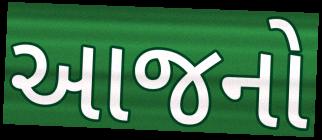
આજનો